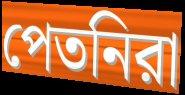
পেতনিরা